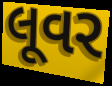
લૂવર